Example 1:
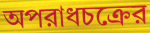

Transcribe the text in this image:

অপরাধচক্রের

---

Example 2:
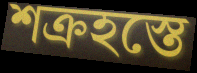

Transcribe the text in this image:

শক্রহস্তে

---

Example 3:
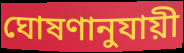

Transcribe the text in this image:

ঘোষণানুযায়ী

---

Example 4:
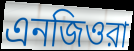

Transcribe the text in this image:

এনজিওরা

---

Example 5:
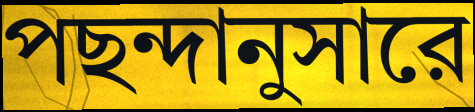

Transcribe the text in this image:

পছন্দানুসারে